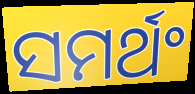
ସମର୍ଥଂ